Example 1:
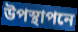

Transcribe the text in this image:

উপস্থাপনে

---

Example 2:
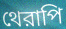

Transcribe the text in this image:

থেরাপি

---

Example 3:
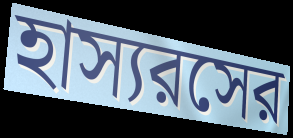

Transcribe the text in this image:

হাস্যরসের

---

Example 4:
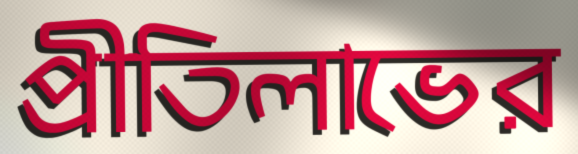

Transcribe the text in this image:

প্রীতিলাভের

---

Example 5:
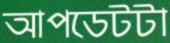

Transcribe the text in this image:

আপডেটটা